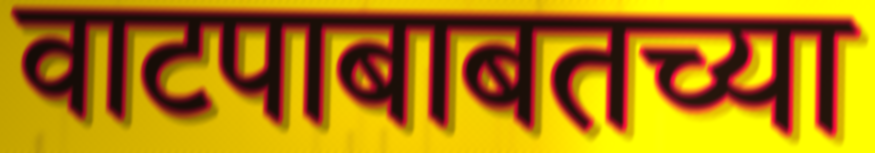
वाटपाबाबतच्या